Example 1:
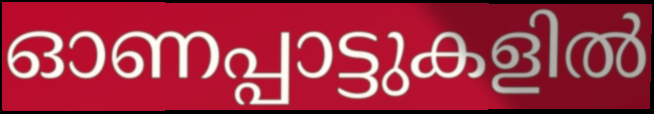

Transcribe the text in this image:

ഓണപ്പാട്ടുകളിൽ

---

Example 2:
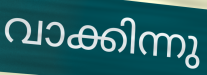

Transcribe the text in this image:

വാക്കിന്നു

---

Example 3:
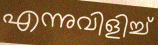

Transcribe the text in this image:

എന്നുവിളിച്ച്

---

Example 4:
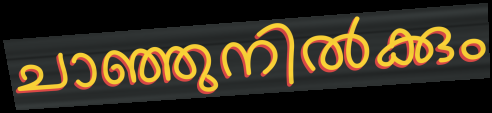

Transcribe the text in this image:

ചാഞ്ഞുനിൽക്കും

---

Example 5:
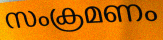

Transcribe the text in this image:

സംക്രമണം